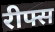
रीफ्स